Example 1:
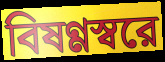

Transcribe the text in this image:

বিষণ্ণস্বরে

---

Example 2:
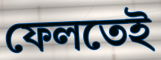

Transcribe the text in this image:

ফেলতেই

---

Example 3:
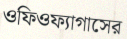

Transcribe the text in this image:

ওফিওফ্যাগাসের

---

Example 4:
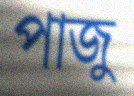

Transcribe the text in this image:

পাজু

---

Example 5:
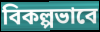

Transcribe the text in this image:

বিকল্পভাবে